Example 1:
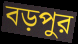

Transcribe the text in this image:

বড়পুর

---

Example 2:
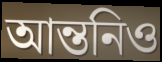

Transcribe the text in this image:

আন্তনিও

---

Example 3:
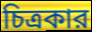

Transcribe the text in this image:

চিত্রকার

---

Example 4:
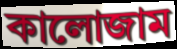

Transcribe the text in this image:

কালোজাম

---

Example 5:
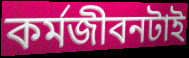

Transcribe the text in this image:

কর্মজীবনটাই